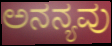
ಅನನ್ಯವು